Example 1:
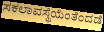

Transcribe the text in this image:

ಸಕಲಾವಸ್ಥೆಯೆಂತೆಂದಡೆ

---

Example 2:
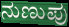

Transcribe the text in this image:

ನುಣುಪು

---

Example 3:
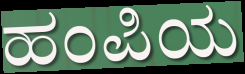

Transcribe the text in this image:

ಹಂಪಿಯ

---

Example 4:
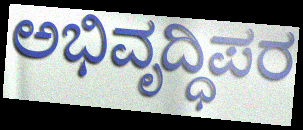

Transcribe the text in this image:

ಅಭಿವೃದ್ಧಿಪರ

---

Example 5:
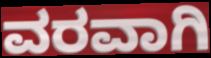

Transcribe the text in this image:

ವರವಾಗಿ